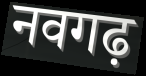
नवगढ़